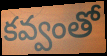
కవ్వంతో